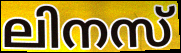
ലിനസ്